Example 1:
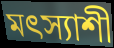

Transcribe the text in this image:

মৎস্যাশী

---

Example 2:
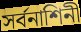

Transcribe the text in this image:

সর্বনাশিনী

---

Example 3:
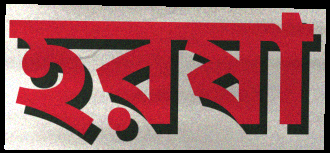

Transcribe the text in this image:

হরষা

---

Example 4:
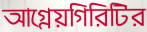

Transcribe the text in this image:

আগ্নেয়গিরিটির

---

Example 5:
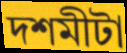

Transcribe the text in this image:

দশমীটা